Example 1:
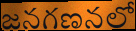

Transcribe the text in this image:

జనగణనలో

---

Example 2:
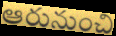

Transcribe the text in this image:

ఆరునుంచి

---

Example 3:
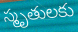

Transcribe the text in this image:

స్మృతులకు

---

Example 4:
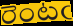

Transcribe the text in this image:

రెంటఁ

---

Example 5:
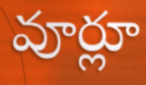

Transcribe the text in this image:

వూర్లూ